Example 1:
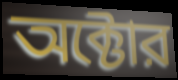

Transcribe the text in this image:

অক্টোর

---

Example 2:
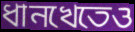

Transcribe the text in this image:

ধানখেতেও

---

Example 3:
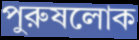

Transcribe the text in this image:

পুরুষলোক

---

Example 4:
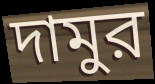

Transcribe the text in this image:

দামুর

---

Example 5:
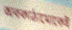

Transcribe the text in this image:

অবকাঠামোকেই